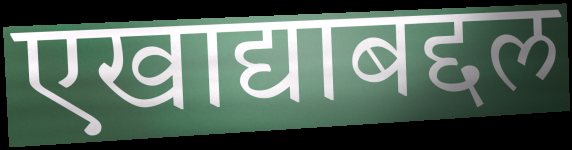
एखाद्याबद्दल